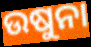
ଉଷୁନା